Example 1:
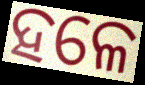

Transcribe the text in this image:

ହଳେ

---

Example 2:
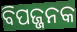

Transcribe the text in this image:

ବିପଜ୍ଜନକ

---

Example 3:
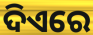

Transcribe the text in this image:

ଦିଏରେ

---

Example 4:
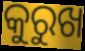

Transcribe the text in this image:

କୁରୁଖ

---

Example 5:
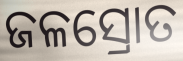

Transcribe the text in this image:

ଜଳସ୍ରୋତ